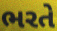
ભરતે